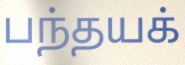
பந்தயக்